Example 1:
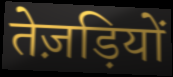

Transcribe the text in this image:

तेज़ड़ियों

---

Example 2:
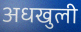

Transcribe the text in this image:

अधखुली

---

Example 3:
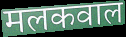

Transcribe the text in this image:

मलकवाल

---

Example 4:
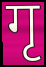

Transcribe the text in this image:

गृ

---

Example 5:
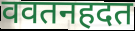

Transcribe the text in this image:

ववतनहदत